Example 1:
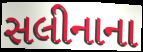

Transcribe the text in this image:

સલીનાના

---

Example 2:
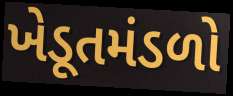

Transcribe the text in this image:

ખેડૂતમંડળો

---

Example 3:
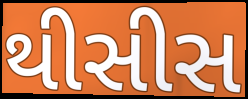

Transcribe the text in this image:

થીસીસ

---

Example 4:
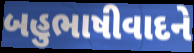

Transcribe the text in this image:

બહુભાષીવાદને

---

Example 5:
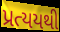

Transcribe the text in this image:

પ્રત્યયથી